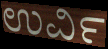
ಉರ್ವಿ